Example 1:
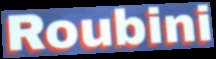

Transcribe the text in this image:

Roubini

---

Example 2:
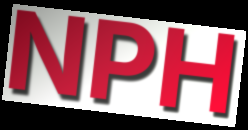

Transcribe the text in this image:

NPH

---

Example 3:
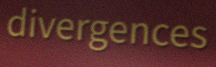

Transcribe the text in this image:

divergences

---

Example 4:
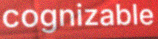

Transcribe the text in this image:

cognizable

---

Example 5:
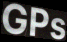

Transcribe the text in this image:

GPs